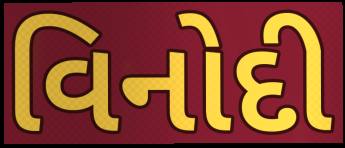
વિનોદી